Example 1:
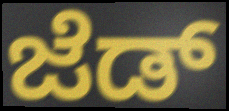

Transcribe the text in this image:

ಜೆಡ್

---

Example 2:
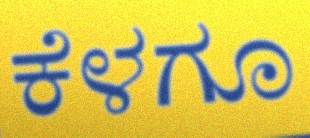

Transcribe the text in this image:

ಕೆಳಗೂ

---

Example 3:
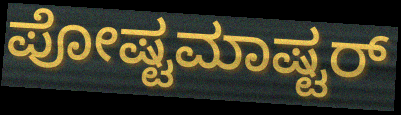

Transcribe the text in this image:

ಪೋಷ್ಟಮಾಷ್ಟರ್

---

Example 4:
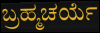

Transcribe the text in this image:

ಬ್ರಹ್ಮಚರ್ಯೆ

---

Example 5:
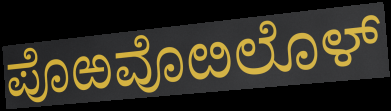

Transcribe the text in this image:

ಪೊಱವೊೞಲೊಳ್